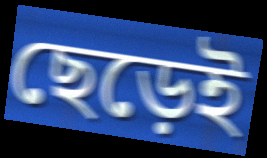
ছেড়েই